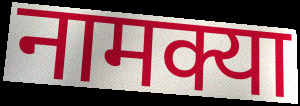
नामक्या